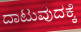
ದಾಟುವುದಕ್ಕೆ